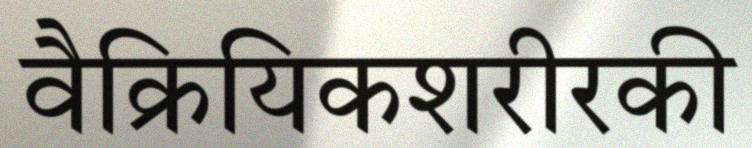
वैक्रियिकशरीरकी